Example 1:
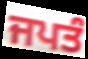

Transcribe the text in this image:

ਜਪਤੰ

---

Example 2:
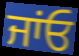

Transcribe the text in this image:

ਜਾਂਓ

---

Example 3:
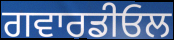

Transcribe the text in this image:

ਗਵਾਰਡੀਓਲ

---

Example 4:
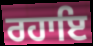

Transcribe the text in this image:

ਰਹਾਇ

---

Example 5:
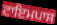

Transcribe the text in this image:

ਟਾਇਮਪਾਸ